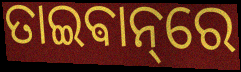
ତାଇଵାନ୍‌ରେ